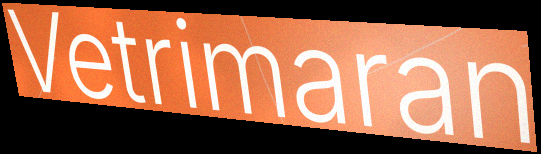
Vetrimaran